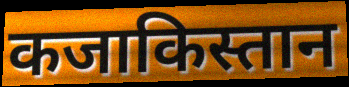
कजाकिस्तान